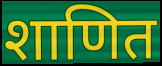
शाणित